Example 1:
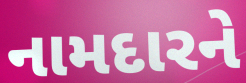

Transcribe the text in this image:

નામદારને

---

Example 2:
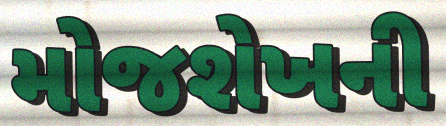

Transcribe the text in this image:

મોજશેખની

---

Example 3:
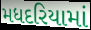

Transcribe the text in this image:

મધદરિયામાં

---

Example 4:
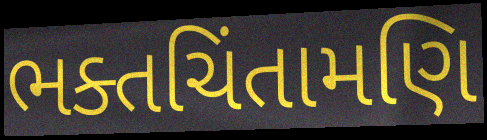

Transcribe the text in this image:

ભક્તચિંતામણિ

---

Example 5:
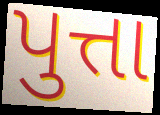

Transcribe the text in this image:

પુત્તા